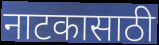
नाटकासाठी